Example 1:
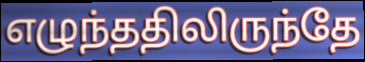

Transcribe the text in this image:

எழுந்ததிலிருந்தே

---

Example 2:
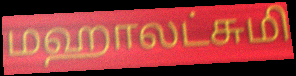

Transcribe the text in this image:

மஹாலட்சுமி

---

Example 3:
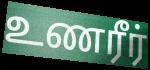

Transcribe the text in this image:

உணரீர்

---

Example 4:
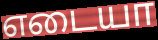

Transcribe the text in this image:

எடையா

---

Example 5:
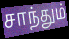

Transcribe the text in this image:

சாந்தும்